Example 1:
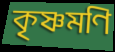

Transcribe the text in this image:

কৃষ্ণমণি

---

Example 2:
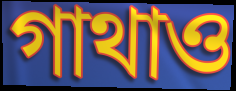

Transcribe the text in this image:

গাথাও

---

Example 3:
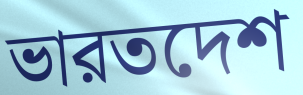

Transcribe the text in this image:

ভারতদেশ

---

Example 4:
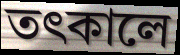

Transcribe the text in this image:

তৎকালে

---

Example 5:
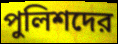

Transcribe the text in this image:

পুলিশদের